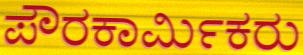
ಪೌರಕಾರ್ಮಿಕರು